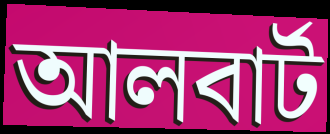
আলবার্ট